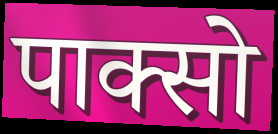
पाक्सो